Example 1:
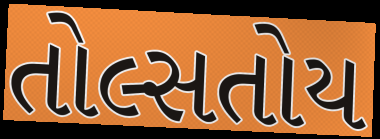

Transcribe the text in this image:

તોલ્સતોય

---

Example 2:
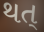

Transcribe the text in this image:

થત્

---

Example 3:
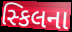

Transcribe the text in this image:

સ્કિલના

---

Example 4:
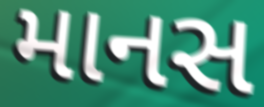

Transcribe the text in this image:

માનસ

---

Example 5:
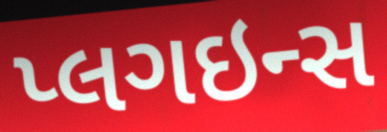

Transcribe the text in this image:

પ્લગઇન્સ